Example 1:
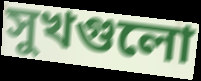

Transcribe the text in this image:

সুখগুলো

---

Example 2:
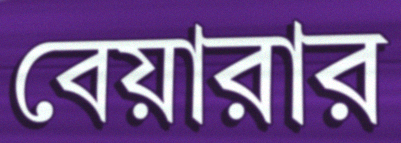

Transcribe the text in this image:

বেয়ারার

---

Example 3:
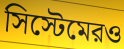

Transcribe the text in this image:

সিস্টেমেরও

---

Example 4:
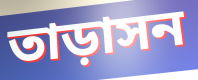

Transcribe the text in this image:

তাড়াসন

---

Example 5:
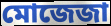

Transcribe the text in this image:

মোজেজা